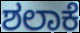
ಶಲಾಕೆ